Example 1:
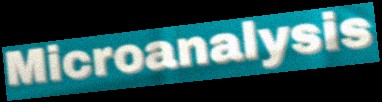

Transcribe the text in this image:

Microanalysis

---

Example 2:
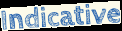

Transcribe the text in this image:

Indicative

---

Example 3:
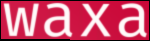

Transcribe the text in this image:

waxa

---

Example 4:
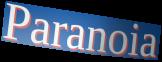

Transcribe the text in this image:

Paranoia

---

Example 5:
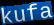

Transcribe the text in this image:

kufa